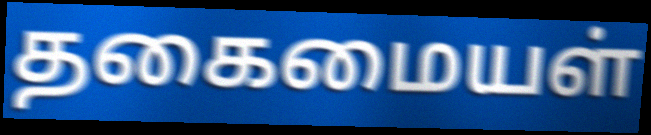
தகைமையள்